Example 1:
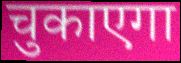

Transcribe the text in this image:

चुकाएगा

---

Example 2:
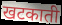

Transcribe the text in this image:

खटकाती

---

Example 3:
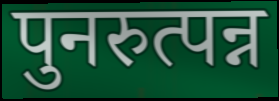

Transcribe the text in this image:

पुनरुत्पन्न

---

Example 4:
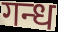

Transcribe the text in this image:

गन्‍ध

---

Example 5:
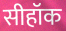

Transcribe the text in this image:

सीहॉक